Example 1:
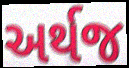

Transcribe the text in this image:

અર્થજ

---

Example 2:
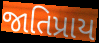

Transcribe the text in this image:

જાતિપ્રાય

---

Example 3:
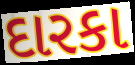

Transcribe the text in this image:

દારકા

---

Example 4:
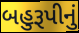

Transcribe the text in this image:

બહુરૂપીનું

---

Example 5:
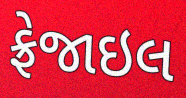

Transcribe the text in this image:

ફ્રેજાઇલ